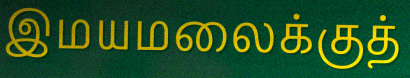
இமயமலைக்குத்